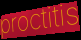
proctitis